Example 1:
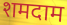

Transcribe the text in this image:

शमदाम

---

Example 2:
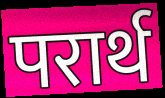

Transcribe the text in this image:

परार्थ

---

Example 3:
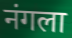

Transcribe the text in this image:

नंगला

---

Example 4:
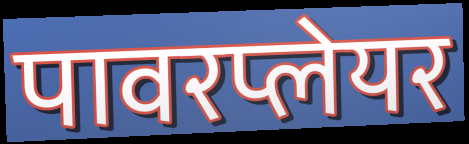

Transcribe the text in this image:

पावरप्लेयर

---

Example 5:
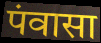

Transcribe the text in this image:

पंवासा